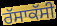
ਰੱਸਾਕੱਸੀ